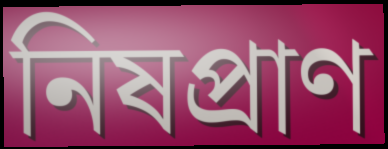
নিষপ্রাণ